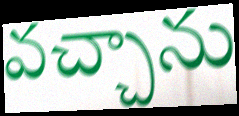
వచ్చాను